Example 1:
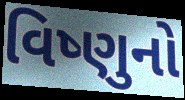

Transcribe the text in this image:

વિષ્ણુનો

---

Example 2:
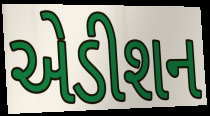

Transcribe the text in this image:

એડીશન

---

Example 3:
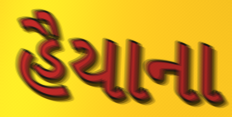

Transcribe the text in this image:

હૈયાના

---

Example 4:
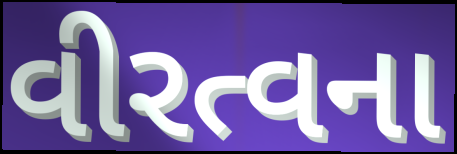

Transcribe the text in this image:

વીરત્વના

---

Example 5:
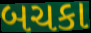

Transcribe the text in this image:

બચકા